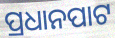
ପ୍ରଧାନପାଟ